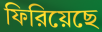
ফিরিয়েছে